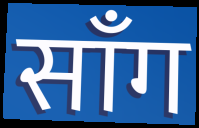
साँग